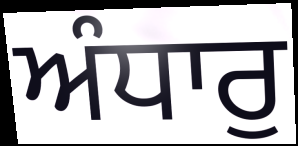
ਅੰਧਾਰੁ